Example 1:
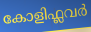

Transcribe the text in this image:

കോളിഫ്ലവർ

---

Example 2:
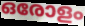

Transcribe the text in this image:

ഒരോളം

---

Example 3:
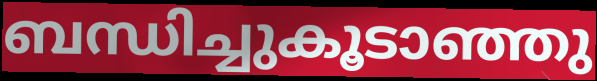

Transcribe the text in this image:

ബന്ധിച്ചുകൂടാഞ്ഞു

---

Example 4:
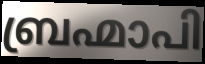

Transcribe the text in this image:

ബ്രഹ്മാപി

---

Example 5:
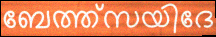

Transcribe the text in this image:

ബേത്ത്സയിദേ